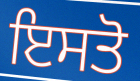
ਇਸਤੋ